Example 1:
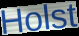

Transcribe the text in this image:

Holst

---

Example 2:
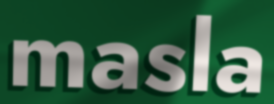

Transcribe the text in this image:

masla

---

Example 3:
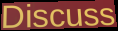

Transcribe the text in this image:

Discuss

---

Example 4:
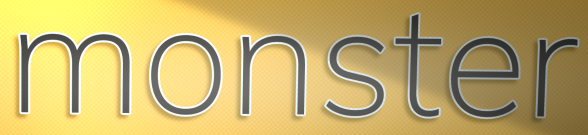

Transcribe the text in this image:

monster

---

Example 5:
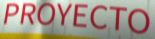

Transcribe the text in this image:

PROYECTO